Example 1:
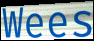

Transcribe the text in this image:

Wees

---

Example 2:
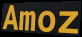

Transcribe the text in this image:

Amoz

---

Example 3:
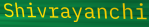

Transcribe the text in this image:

Shivrayanchi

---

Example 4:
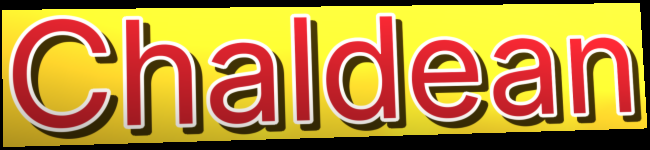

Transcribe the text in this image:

Chaldean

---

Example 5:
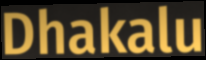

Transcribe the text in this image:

Dhakalu